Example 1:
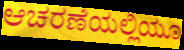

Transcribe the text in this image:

ಆಚರಣೆಯಲ್ಲಿಯೂ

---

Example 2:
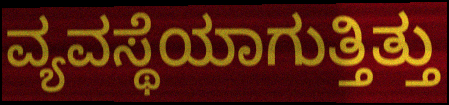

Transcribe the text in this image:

ವ್ಯವಸ್ಥೆಯಾಗುತ್ತಿತ್ತು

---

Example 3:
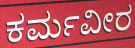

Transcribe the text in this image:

ಕರ್ಮವೀರ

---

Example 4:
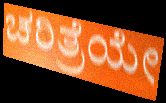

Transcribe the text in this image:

ಚರಿತ್ರೆಯೇ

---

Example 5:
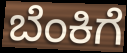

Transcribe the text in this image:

ಬೆಂಕಿಗೆ